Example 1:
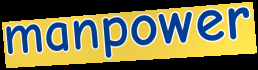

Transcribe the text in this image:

manpower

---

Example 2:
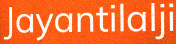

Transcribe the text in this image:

Jayantilalji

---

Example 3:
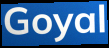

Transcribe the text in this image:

Goyal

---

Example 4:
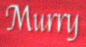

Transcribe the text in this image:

Murry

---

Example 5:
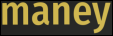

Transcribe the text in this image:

maney